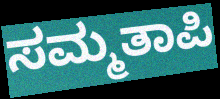
ಸಮ್ಮತಾಪಿ